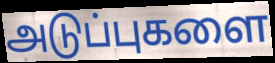
அடுப்புகளை